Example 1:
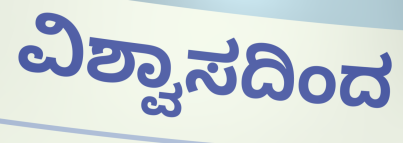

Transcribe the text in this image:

ವಿಶ್ವಾಸದಿಂದ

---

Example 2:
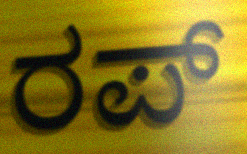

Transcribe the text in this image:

ರಪ್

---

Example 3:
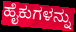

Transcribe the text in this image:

ಹೈಕುಗಳನ್ನು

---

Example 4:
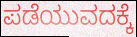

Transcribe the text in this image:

ಪಡೆಯುವದಕ್ಕೆ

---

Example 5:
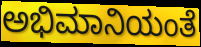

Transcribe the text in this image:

ಅಭಿಮಾನಿಯಂತೆ